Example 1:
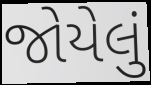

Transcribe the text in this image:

જોયેલું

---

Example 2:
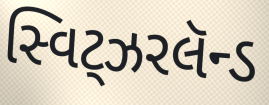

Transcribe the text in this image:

સ્વિટ્ઝરલૅન્ડ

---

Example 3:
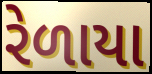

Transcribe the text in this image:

રેળાયા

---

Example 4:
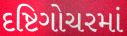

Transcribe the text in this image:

દષ્ટિગોચરમાં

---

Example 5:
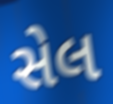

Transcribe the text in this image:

સેલ